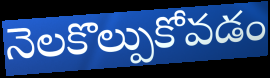
నెలకొల్పుకోవడం